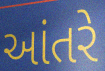
આંતરે